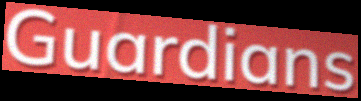
Guardians